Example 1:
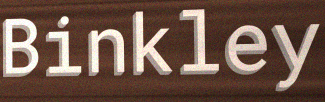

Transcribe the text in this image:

Binkley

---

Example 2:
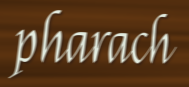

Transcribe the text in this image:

pharach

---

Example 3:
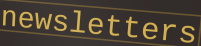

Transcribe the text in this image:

newsletters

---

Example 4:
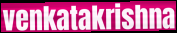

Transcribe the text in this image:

venkatakrishna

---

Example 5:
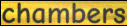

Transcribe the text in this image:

chambers